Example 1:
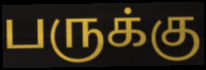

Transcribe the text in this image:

பருக்கு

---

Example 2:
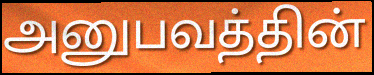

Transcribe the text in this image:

அனுபவத்தின்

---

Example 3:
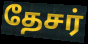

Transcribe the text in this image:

தேசர்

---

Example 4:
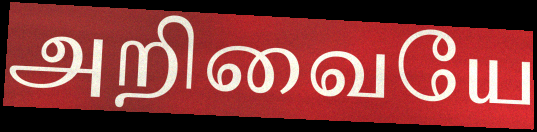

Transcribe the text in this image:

அறிவையே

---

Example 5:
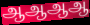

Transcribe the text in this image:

ஆஆஆஆ